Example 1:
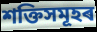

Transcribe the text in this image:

শক্তিসমূহৰ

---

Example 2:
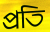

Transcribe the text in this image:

প্ৰতি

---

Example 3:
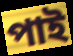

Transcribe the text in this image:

পাই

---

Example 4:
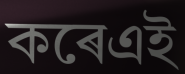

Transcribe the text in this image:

কৰেএই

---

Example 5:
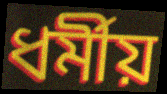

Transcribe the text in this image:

ধৰ্মীয়